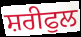
ਸ਼ਰੀਫੁਲ